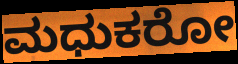
ಮಧುಕರೋ